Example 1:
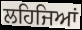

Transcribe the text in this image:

ਲਹਿਜਿਆਂ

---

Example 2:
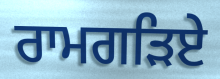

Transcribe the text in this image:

ਰਾਮਗੜਿਏ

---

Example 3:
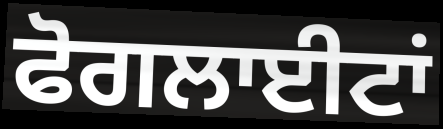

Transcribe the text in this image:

ਫੋਗਲਾਈਟਾਂ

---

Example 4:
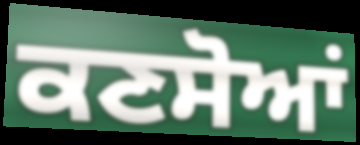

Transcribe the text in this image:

ਕਣਸੋਆਂ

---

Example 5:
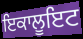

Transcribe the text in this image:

ਇਕਾਲੂਇਟ